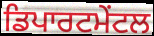
ਡਿਪਾਰਟਮੇਂਟਲ